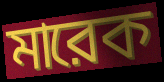
মারেক